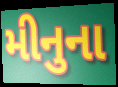
મીનુના